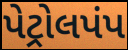
પેટ્રોલપંપ